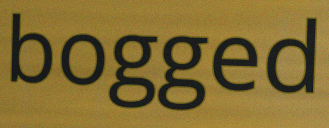
bogged